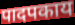
पादपकाय